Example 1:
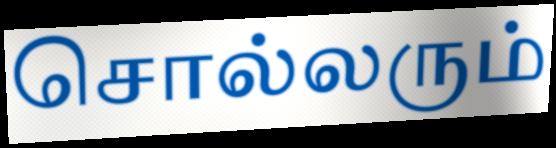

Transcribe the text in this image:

சொல்லரும்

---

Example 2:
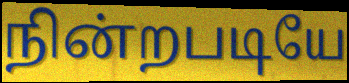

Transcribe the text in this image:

நின்றபடியே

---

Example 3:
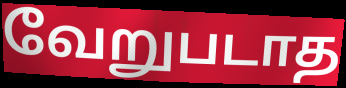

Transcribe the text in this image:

வேறுபடாத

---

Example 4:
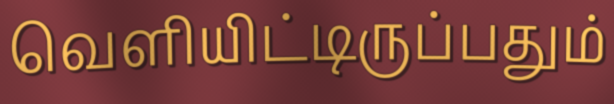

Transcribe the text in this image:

வெளியிட்டிருப்பதும்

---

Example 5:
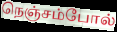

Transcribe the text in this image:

நெஞ்சம்போல்